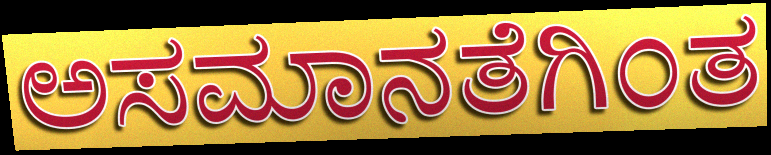
ಅಸಮಾನತೆಗಿಂತ